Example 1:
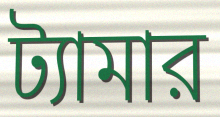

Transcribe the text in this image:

ট্যামার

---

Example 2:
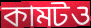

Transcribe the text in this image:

কামটও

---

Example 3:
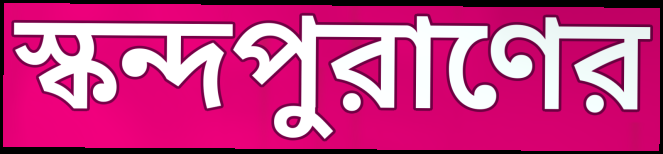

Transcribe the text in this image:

স্কন্দপুরাণের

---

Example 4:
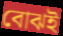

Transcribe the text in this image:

বোঝই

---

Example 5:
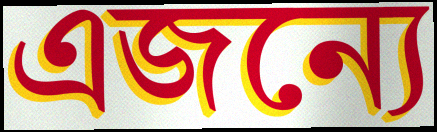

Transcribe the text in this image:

এজন্যে